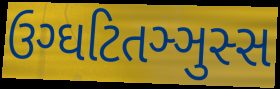
ઉગ્ઘટિતઞ્ઞુસ્સ